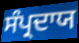
ਸੰਪ੍ਰਦਾਯ